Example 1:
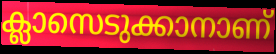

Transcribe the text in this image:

ക്ലാസെടുക്കാനാണ്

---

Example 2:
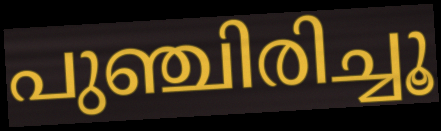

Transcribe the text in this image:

പുഞ്ചിരിച്ചൂ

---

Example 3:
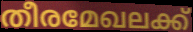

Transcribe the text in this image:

തീരമേഖലക്ക്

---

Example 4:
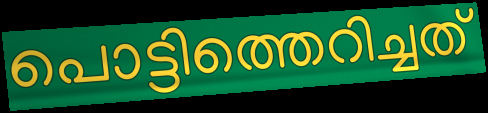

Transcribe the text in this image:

പൊട്ടിത്തെറിച്ചത്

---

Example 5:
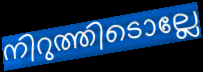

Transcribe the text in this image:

നിറുത്തിടൊല്ലേ